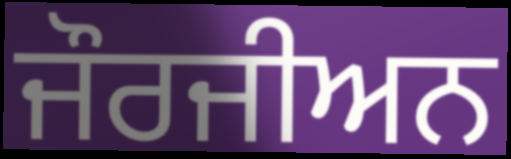
ਜੌਰਜੀਅਨ